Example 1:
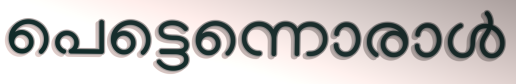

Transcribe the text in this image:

പെട്ടെന്നൊരാൾ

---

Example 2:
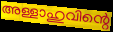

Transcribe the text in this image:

അള്ളാഹുവിന്റെ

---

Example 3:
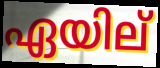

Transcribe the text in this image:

ഏയില്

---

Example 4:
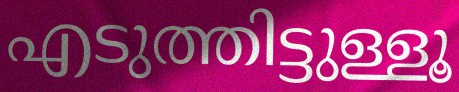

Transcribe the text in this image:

എടുത്തിട്ടുള്ളൂ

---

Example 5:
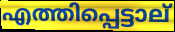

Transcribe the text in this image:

എത്തിപ്പെട്ടാല്